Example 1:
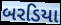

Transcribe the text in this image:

બરડિયા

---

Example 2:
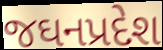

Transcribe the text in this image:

જઘનપ્રદેશ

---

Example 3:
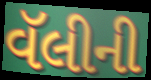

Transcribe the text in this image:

વૅલીની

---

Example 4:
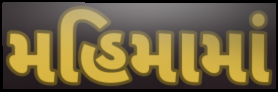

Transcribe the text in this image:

મહિમામાં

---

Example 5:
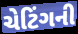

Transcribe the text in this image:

ચેટિંગની